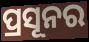
ପ୍ରସୂନର